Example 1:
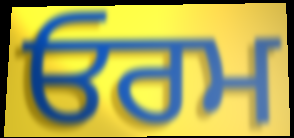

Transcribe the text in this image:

ਓਰਮ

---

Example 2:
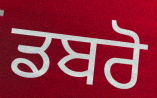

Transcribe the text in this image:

ਡਬਰੋ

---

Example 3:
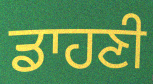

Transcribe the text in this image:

ਡਾਹਣੀ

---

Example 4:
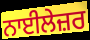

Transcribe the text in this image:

ਨਾਈਲੇਜ਼ਰ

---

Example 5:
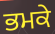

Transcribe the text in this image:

ਭਮਕੇ